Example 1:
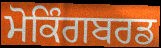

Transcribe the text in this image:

ਮੋਕਿੰਗਬਰਡ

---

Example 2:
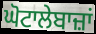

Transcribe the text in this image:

ਘੋਟਾਲੇਬਾਜ਼ਾਂ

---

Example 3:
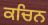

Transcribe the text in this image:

ਕਚਿਨ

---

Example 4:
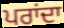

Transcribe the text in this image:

ਪਰਾਂਦਾ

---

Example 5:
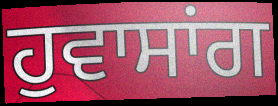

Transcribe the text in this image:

ਹੁਵਾਸਾਂਗ